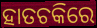
ହାତଚକିରେ